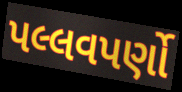
પલ્લવપર્ણો